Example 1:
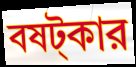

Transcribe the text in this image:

বষট্কার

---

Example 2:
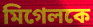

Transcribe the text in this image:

মিগেলকে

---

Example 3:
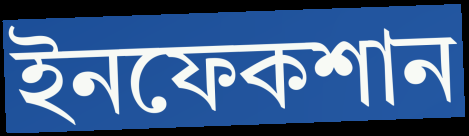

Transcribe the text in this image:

ইনফেকশান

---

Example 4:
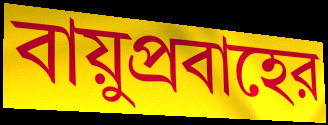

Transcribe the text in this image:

বায়ুপ্রবাহের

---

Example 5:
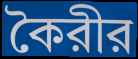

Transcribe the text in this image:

কৈরীর